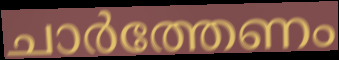
ചാർത്തേണം